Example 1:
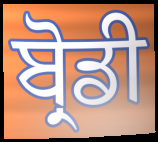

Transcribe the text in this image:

ਬ੍ਰੋਡੀ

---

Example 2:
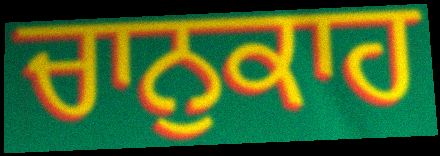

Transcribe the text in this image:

ਚਾਨੁਕਾਹ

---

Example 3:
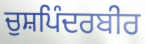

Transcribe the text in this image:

ਚੁਸ਼ਪਿੰਦਰਬੀਰ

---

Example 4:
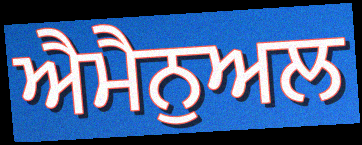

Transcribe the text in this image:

ਐਮੈਨੁਅਲ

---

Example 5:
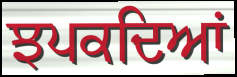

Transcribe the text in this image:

ਝਪਕਦਿਆਂ